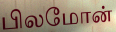
பிலமோன்